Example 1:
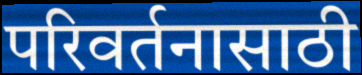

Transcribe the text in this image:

परिवर्तनासाठी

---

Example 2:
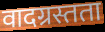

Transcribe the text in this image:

वादग्रस्तता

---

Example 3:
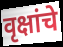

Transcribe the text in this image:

वृक्षांचे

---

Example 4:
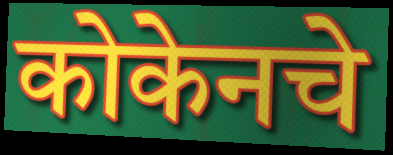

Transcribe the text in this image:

कोकेनचे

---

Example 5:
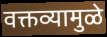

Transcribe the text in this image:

वक्तव्यामुळे